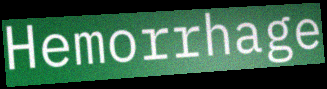
Hemorrhage